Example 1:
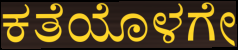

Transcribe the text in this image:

ಕತೆಯೊಳಗೇ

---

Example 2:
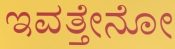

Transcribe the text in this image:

ಇವತ್ತೇನೋ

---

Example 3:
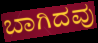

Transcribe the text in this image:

ಬಾಗಿದವು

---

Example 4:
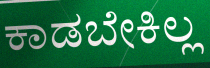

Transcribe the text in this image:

ಕಾಡಬೇಕಿಲ್ಲ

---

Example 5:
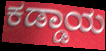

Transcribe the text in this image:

ಕಡ್ಡಾಯ